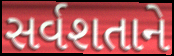
સર્વશતાને